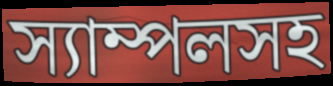
স্যাম্পলসহ